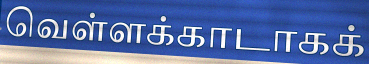
வெள்ளக்காடாகக்